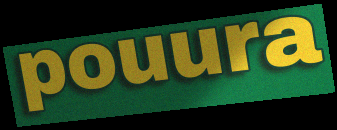
pouura